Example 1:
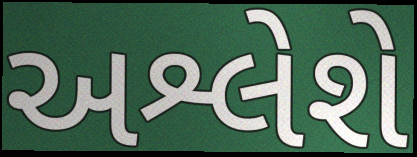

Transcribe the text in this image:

અશ્લેશે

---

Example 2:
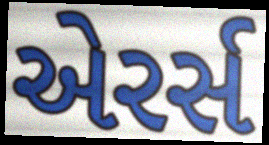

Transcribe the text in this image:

એરર્સ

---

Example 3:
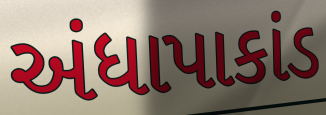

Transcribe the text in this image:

અંધાપાકાંડ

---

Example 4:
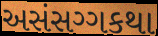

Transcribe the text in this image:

અસંસગ્ગકથા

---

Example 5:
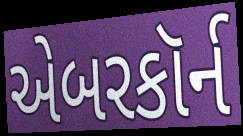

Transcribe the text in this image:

એબરકૉર્ન